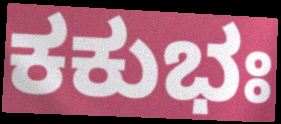
ಕಕುಭಃ